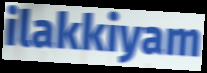
ilakkiyam